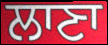
ਲਾਣਾ